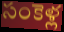
సంకెళ్ల